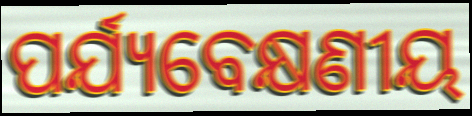
ପର୍ଯ୍ୟବେକ୍ଷଣୀୟ